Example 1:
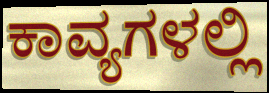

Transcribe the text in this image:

ಕಾವ್ಯಗಳಲ್ಲಿ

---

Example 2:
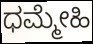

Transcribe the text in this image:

ಧಮ್ಮೇಹಿ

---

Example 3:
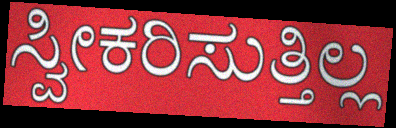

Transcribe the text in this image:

ಸ್ವೀಕರಿಸುತ್ತಿಲ್ಲ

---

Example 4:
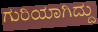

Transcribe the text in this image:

ಗುರಿಯಾಗಿದ್ದು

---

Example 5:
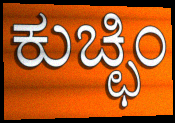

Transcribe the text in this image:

ಕುಚ್ಛಿಂ